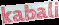
kabali